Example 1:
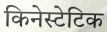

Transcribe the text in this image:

किनेस्टेटिक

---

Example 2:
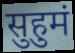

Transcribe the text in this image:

सुहुमं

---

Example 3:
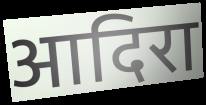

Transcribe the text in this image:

आदिरा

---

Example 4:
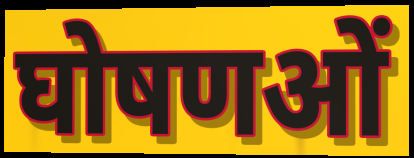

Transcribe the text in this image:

घोषणओं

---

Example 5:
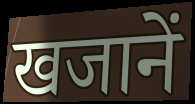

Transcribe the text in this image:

खजानें